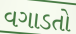
વગાડતો